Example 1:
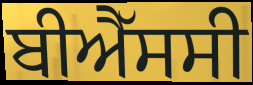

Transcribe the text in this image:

ਬੀਐੱਸਸੀ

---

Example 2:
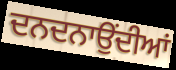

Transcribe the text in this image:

ਦਨਦਨਾਉਂਦੀਆਂ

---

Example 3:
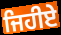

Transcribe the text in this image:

ਜਿਹੀਏ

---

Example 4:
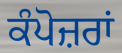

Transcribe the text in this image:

ਕੰਪੋਜ਼ਰਾਂ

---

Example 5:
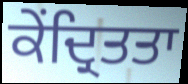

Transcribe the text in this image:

ਕੇਂਦ੍ਰਿਤਤਾ